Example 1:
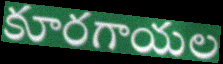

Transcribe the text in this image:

కూరగాయల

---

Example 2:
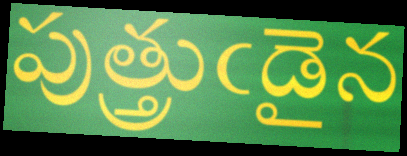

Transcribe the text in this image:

పుత్త్రుఁడైన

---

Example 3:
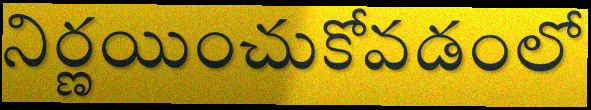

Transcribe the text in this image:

నిర్ణయించుకోవడంలో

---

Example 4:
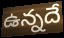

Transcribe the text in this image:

ఉన్నదే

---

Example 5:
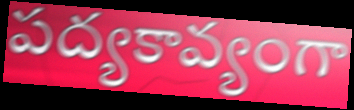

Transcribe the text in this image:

పద్యకావ్యంగా